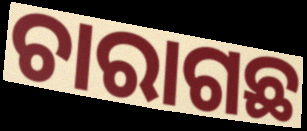
ଚାରାଗଛ